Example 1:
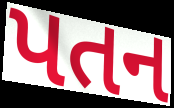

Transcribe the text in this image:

પતન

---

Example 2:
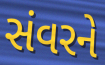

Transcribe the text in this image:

સંવરને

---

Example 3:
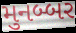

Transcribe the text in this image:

મુનબ્બર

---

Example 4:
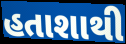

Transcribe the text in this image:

હતાશાથી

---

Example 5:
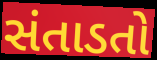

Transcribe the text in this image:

સંતાડતો